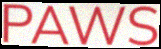
PAWS